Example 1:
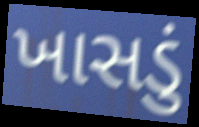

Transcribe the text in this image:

ખાસડું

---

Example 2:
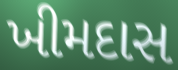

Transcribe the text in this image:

ખીમદાસ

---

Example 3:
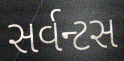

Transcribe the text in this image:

સર્વન્ટસ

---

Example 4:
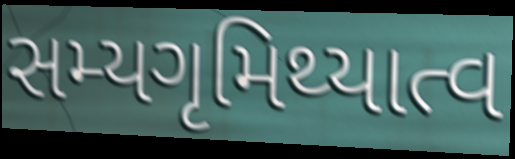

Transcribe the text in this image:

સમ્યગૃમિથ્યાત્વ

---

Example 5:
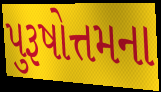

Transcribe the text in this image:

પુરૂષોત્તમના